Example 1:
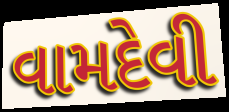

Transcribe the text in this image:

વામદેવી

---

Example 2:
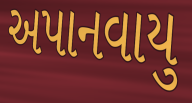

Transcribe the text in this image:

અપાનવાયુ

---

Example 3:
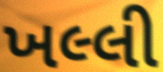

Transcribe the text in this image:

ખલ્લી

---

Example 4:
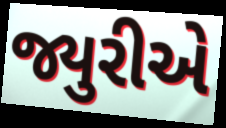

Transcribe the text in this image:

જ્યુરીએ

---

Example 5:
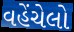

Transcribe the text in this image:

વહેંચેલો